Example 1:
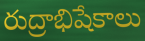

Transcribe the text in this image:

రుద్రాభిషేకాలు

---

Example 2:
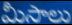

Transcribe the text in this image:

మీసాలు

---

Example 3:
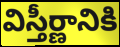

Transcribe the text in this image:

విస్తీర్ణానికి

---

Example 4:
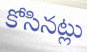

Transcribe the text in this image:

కోసినట్లు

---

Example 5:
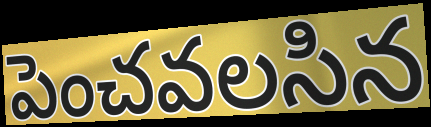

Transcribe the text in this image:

పెంచవలసిన